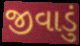
જીવાડું